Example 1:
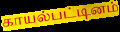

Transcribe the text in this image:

காயல்பட்டினம்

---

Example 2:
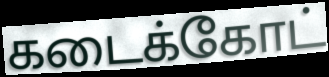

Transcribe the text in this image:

கடைக்கோட்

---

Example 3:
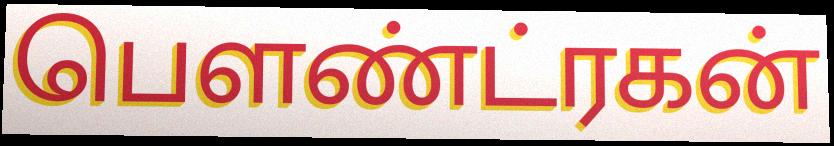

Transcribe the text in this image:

பௌண்ட்ரகன்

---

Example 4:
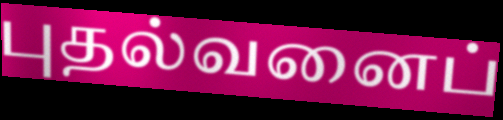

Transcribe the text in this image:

புதல்வனைப்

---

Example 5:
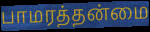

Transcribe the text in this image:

பாமரத்தன்மை